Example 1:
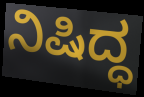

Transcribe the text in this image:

ನಿಷಿದ್ಧ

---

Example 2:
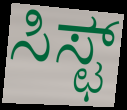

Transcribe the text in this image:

ಸಿಸ್ಟ್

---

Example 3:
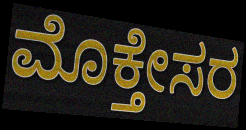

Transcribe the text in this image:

ಮೊಕ್ತೇಸರ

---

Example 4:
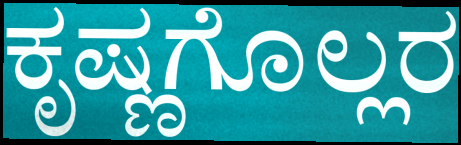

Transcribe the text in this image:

ಕೃಷ್ಣಗೊಲ್ಲರ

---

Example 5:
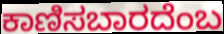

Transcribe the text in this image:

ಕಾಣಿಸಬಾರದೆಂಬ